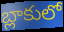
బ్లాకులో